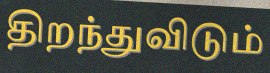
திறந்துவிடும்